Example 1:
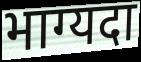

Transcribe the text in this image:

भाग्यदा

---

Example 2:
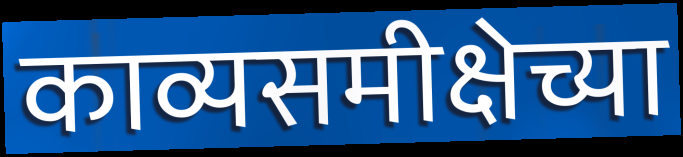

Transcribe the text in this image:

काव्यसमीक्षेच्या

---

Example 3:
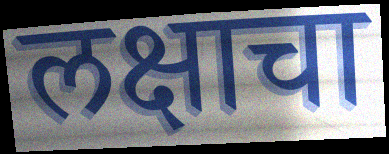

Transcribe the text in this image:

लक्षाचा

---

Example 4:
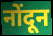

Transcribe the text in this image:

नोंदून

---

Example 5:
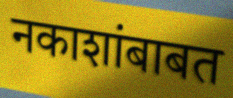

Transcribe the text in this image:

नकाशांबाबत